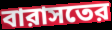
বারাসতের